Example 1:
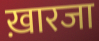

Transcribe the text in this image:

ख़ारजा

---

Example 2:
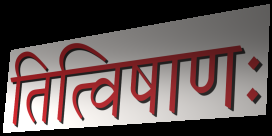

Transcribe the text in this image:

तित्विषाणः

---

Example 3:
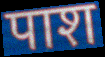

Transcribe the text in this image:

पाश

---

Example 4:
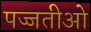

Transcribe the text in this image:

पज्जतीओ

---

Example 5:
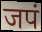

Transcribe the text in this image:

जपं